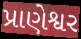
પ્રાણેશ્વર